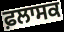
ਫ਼ਲਾਸਕ